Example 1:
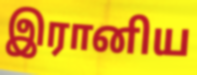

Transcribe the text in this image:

இரானிய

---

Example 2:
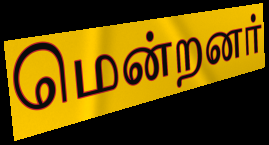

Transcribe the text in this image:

மென்றனர்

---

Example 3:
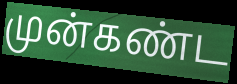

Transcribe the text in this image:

முன்கண்ட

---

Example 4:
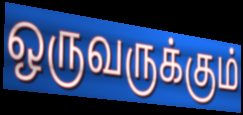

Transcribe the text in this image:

ஒருவருக்கும்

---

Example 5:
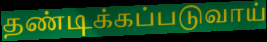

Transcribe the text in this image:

தண்டிக்கப்படுவாய்